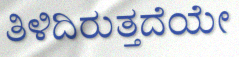
ತಿಳಿದಿರುತ್ತದೆಯೇ